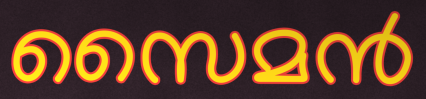
സൈമൻ